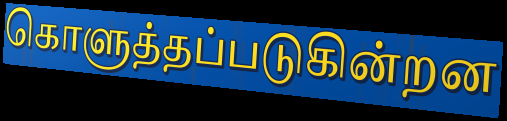
கொளுத்தப்படுகின்றன